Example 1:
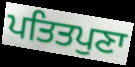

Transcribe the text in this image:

ਪਤਿਤਪੁਣਾ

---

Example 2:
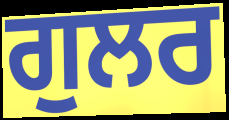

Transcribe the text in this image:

ਗੁਲਰ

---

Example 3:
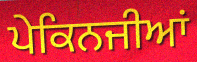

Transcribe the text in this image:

ਪੇਕਿਨਜੀਆਂ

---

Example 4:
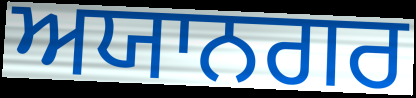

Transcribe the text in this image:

ਅਯਾਨਗਰ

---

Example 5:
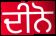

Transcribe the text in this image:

ਦੀਨੋ